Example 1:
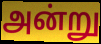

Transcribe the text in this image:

அன்று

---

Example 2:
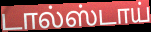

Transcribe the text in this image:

டால்ஸ்டாய்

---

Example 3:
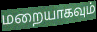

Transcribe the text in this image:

மறையாகவும்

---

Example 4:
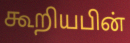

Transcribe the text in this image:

கூறியபின்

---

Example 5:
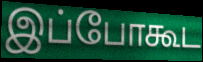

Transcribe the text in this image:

இப்போகூட